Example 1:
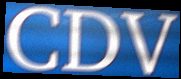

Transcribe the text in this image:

CDV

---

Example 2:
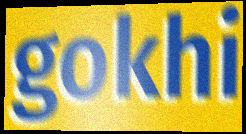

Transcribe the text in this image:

gokhi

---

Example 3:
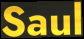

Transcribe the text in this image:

Saul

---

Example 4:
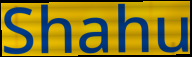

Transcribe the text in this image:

Shahu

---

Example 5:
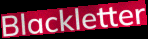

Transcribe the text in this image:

Blackletter